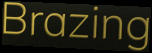
Brazing